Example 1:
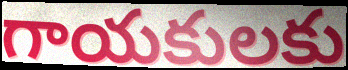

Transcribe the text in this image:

గాయకులకు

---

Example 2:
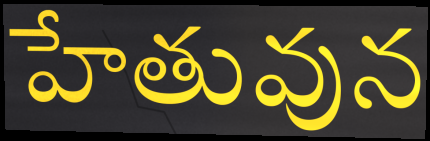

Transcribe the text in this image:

హేతువున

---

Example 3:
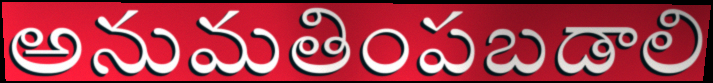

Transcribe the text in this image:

అనుమతింపబడాలి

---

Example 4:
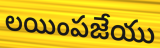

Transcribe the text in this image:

లయింపజేయు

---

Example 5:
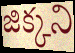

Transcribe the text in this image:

జిక్కని